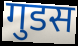
गुडस